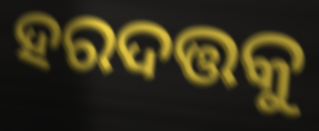
ହରଦତ୍ତକୁ